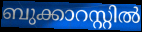
ബുക്കാറസ്റ്റിൽ